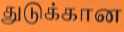
துடுக்கான